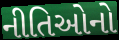
નીતિઓનો